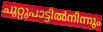
ചുറ്റുപാട്ടിൽനിന്നും